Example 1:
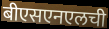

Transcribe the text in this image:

बीएसएनएलची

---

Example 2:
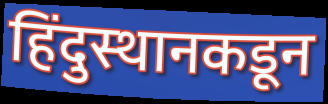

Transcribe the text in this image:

हिंदुस्थानकडून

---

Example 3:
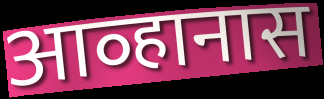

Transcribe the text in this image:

आव्हानास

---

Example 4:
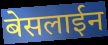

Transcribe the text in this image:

बेसलाईन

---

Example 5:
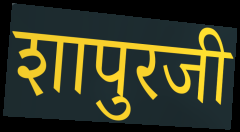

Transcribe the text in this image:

शापुरजी